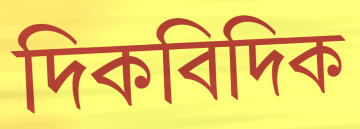
দিকবিদিক